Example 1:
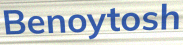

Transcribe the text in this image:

Benoytosh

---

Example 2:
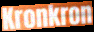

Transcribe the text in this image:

Kronkron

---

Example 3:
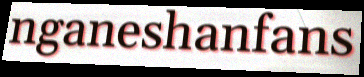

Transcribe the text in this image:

nganeshanfans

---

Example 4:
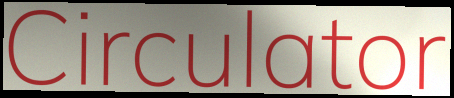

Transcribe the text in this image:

Circulator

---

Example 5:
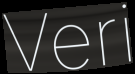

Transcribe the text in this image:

Veri